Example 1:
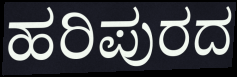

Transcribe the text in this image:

ಹರಿಪುರದ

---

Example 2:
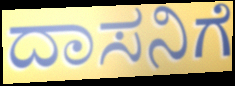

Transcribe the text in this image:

ದಾಸನಿಗೆ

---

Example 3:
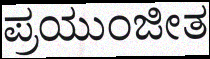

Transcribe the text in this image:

ಪ್ರಯುಂಜೀತ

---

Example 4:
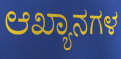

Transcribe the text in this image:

ಆಖ್ಯಾನಗಳ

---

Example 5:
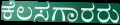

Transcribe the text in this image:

ಕೆಲಸಗಾರರು